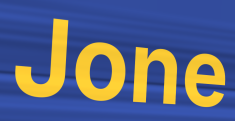
Jone